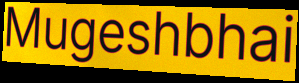
Mugeshbhai